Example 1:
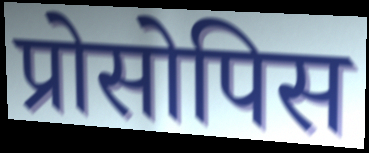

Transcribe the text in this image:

प्रोसोपिस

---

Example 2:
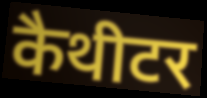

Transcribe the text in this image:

कैथीटर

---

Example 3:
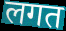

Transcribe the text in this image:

लगत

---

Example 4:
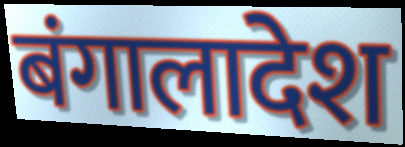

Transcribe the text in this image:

बंगालादेश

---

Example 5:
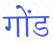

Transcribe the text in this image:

गोंड